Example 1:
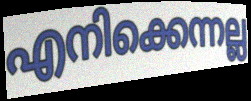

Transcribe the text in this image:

എനിക്കെന്നല്ല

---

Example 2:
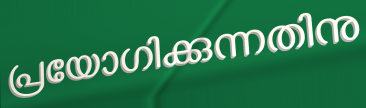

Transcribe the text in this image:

പ്രയോഗിക്കുന്നതിനു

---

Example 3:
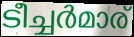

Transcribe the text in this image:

ടീച്ചർമാര്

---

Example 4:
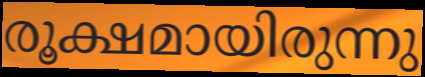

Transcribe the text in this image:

രൂക്ഷമായിരുന്നു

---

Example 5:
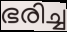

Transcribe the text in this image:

ഭരിച്ച